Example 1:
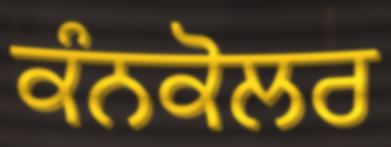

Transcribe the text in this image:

ਕੰਨਕੋਲਰ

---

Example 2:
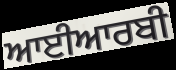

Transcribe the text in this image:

ਆਈਆਰਬੀ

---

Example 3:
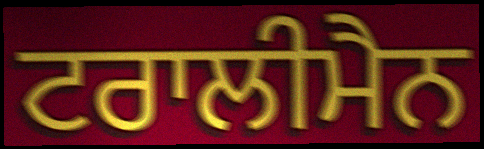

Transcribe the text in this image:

ਟਰਾਲੀਮੈਨ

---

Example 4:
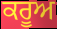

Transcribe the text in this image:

ਕਰੂਅ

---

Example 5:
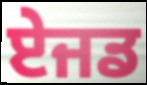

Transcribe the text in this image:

ਏਜਡ